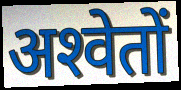
अश्‍वेतों